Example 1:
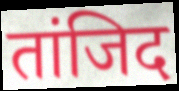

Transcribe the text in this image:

तांजिद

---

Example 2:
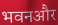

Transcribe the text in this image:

भवनऔर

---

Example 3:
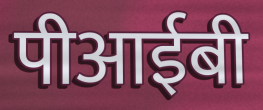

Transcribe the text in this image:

पीआईबी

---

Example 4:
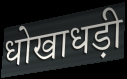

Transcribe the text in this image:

धोखाधड़ी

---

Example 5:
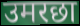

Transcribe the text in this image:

उमरछा